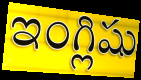
ఇంగ్లిషు